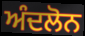
ਅੰਦਲੋਨ